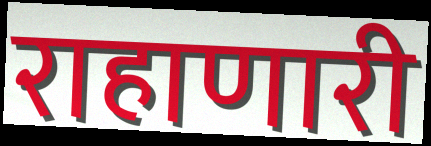
राहाणारी